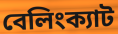
বেলিংক্যাট